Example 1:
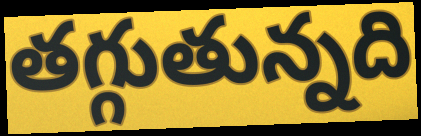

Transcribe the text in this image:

తగ్గుతున్నది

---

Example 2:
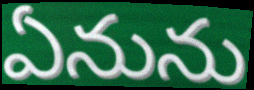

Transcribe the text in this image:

ఏనును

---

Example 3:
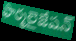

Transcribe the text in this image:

ఫార్మలైజేషన్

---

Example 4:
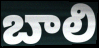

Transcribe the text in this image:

బాలి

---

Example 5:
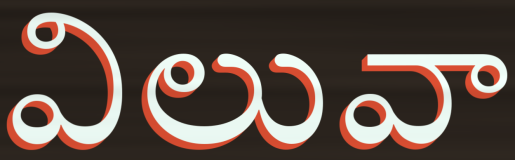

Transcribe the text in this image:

విలువా